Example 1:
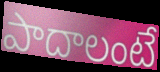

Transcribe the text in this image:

పాదాలంటే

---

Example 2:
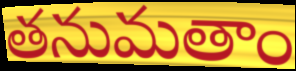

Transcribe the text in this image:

తనుమతాం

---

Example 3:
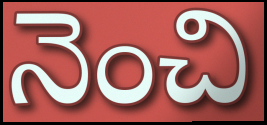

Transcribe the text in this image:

నెంచి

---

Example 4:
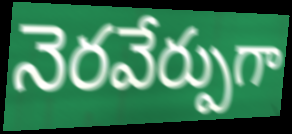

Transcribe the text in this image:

నెరవేర్పుగా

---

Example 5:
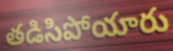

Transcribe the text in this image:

తడిసిపోయారు